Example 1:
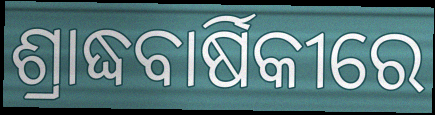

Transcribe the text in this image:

ଶ୍ରାଦ୍ଧବାର୍ଷିକୀରେ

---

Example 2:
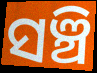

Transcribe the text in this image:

ସଞ୍ଚି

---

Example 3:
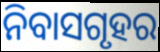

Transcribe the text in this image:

ନିବାସଗୃହର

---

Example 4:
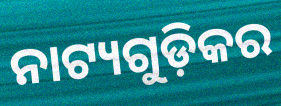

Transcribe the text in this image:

ନାଟ୍ୟଗୁଡ଼ିକର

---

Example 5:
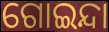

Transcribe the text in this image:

ଗୋଇନ୍ଦା